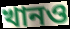
খানও